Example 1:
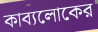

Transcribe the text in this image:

কাব্যলোকের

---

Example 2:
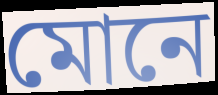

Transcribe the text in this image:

মোনে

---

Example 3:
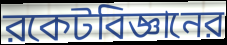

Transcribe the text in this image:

রকেটবিজ্ঞানের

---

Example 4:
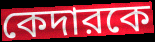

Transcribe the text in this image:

কেদারকে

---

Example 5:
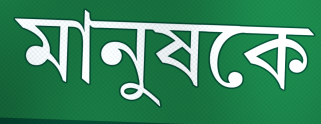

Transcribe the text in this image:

মানুষকে